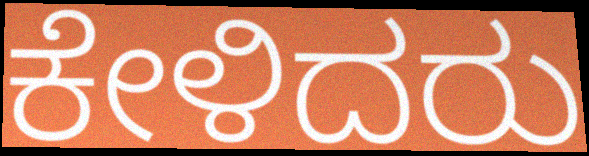
ಕೇಳಿದರು